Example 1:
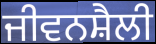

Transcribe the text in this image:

ਜੀਵਨਸ਼ੈਲੀ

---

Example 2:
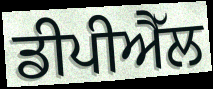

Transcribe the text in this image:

ਡੀਪੀਐੱਲ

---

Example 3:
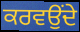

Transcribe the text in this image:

ਕਰਵਉਂਦੇ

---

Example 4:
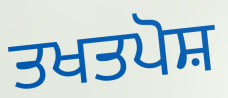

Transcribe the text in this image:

ਤਖਤਪੋਸ਼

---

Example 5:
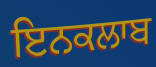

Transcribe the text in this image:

ਇਨਕਲਾਬ